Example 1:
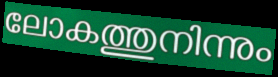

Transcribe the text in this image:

ലോകത്തുനിന്നും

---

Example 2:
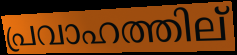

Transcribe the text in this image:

പ്രവാഹത്തില്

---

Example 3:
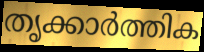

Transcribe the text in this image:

തൃക്കാർത്തിക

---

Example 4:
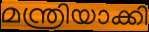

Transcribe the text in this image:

മന്ത്രിയാക്കി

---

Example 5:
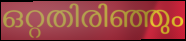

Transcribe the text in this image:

ഒറ്റതിരിഞ്ഞും